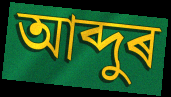
আব্দুৰ